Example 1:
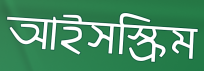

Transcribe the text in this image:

আইসস্ক্রিম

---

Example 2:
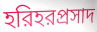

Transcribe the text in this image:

হরিহরপ্রসাদ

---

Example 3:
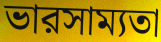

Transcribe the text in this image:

ভারসাম্যতা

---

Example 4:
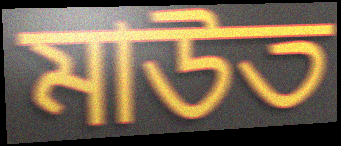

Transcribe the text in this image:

মাউত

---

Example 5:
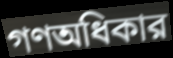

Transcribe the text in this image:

গণঅধিকার